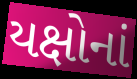
યક્ષોનાં